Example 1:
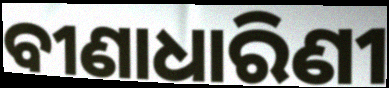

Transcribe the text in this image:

ବୀଣାଧାରିଣୀ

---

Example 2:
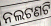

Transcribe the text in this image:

ନଲଟଣଟି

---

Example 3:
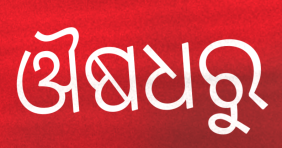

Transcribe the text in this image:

ଔଷଧରୁ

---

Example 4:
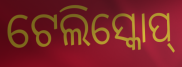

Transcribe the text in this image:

ଟେଲିସ୍କୋପ୍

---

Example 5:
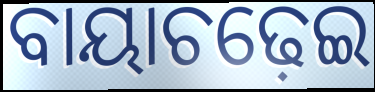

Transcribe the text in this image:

ବାୟାଚଢ଼େଇ